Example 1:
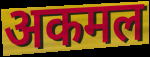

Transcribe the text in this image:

अकमल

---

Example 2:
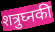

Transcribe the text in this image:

शत्रुघ्नकी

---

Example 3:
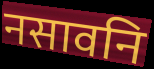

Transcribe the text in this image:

नसावनि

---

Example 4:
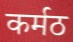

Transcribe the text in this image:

कर्मठ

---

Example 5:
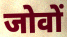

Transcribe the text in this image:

जोवों